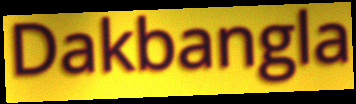
Dakbangla